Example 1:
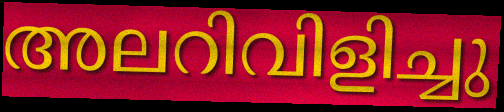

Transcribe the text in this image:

അലറിവിളിച്ചു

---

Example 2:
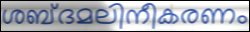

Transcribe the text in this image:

ശബ്ദമലിനീകരണം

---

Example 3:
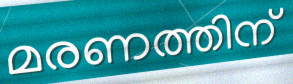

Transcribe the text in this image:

മരണത്തിന്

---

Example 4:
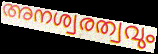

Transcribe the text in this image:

അനശ്വരത്വവും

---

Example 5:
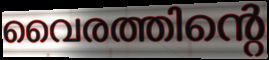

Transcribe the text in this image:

വൈരത്തിന്റെ